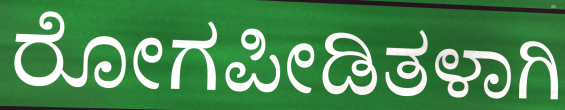
ರೋಗಪೀಡಿತಳಾಗಿ